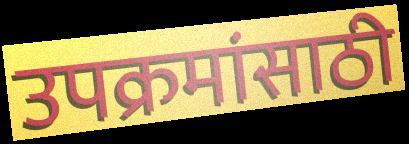
उपक्रमांसाठी